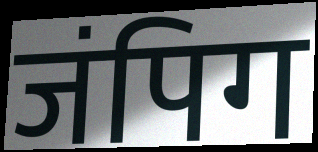
जंपिग